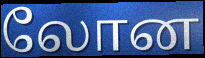
லோன